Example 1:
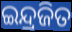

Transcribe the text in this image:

ଇନ୍ଦ୍ରଜିତ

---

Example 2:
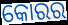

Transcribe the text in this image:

କୋରର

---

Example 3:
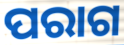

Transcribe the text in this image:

ପରାଗ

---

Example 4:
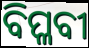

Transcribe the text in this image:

ବିପ୍ଳବୀ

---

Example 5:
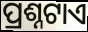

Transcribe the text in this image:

ପ୍ରଶ୍ନଟାଏ